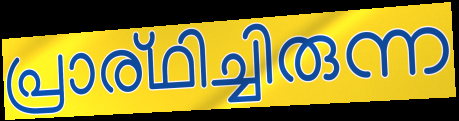
പ്രാര്ഥിച്ചിരുന്ന